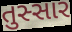
તુસ્સાર